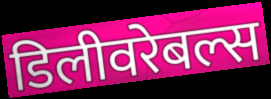
डिलीवरेबल्स